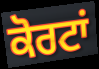
ਕੋਰਟਾਂ